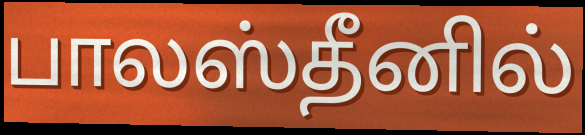
பாலஸ்தீனில்